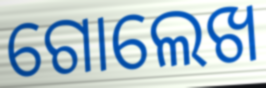
ଗୋଲେଖ